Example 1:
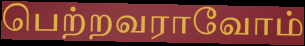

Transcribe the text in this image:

பெற்றவராவோம்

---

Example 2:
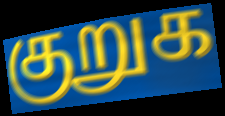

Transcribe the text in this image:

குறுக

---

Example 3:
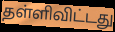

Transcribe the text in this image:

தள்ளிவிட்டது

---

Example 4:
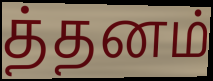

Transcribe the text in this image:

த்தனம்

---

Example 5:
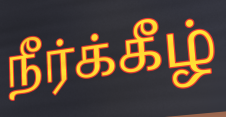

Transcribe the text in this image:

நீர்க்கீழ்